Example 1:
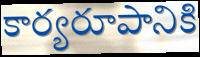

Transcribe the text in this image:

కార్యరూపానికి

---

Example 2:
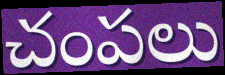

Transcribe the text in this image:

చంపలు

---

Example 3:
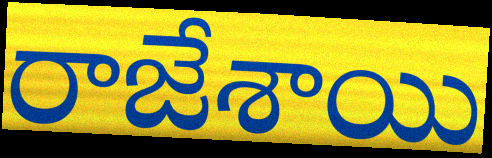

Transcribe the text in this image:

రాజేశాయి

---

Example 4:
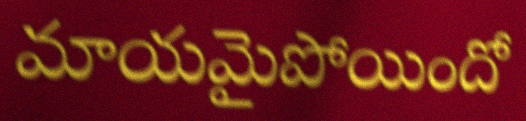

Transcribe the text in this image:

మాయమైపోయిందో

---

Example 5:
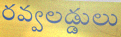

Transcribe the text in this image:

రవ్వలడ్డులు